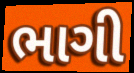
ભાગી